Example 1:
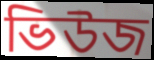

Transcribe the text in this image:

ভিউজ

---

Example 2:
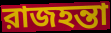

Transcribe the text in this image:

রাজহন্তা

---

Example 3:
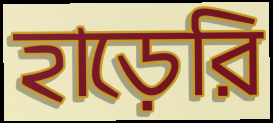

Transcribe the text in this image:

হাড়েরি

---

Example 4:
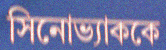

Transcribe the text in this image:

সিনোভ্যাককে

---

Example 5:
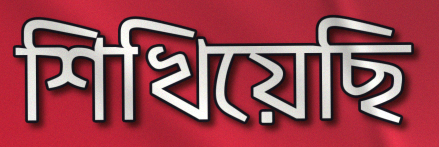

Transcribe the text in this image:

শিখিয়েছি